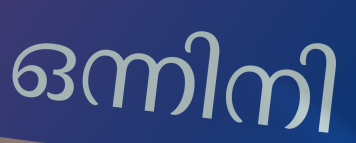
ഒന്നിനി